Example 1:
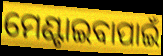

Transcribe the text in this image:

ମେଣ୍ଟାଇବାପାଇଁ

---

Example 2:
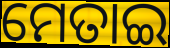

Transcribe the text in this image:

ମେତାଇ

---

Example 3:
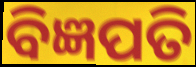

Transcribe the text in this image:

ବିଜ୍ଞପତି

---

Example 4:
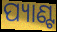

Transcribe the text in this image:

ପ୍ୟାଣ୍ଟ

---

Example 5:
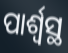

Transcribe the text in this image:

ପାର୍ଶ୍ବସ୍ଥ